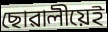
ছোৱালীয়েই